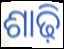
ଶାଢ଼ି